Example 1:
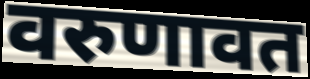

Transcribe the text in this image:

वरुणावत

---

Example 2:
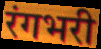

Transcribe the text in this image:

रंगभरी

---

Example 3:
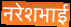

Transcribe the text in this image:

नरेशभाई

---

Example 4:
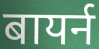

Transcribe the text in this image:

बायर्न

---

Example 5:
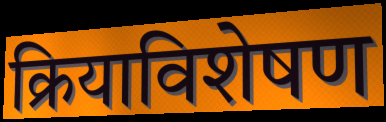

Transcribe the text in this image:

क्रियाविशेषण